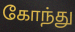
கோந்து